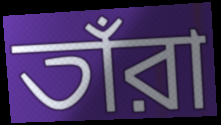
তাঁরা